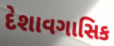
દેશાવગાસિક